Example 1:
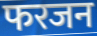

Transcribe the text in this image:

फरजन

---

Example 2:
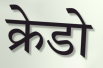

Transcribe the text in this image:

क्रेडो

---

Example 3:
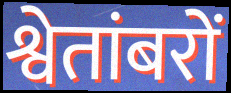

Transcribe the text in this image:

श्वेतांबरों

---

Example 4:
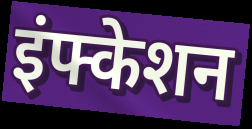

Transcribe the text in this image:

इंफ्केशन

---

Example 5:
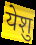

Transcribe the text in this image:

येशु